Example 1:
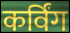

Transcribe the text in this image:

कर्विंग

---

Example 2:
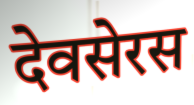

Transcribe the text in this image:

देवसेरस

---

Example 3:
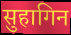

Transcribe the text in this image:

सुहागिन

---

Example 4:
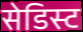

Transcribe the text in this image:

सेडिस्ट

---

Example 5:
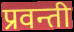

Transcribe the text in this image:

प्रवन्ती